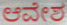
ಆವೇಶ